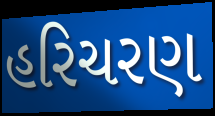
હરિચરણ